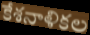
కేశనాళికల